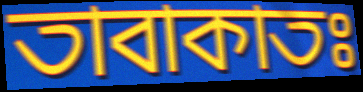
তাবাকাতঃ